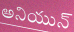
అనియున్